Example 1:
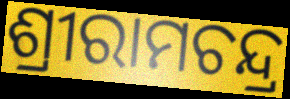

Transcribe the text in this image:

ଶ୍ରୀରାମଚନ୍ଦ୍ର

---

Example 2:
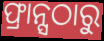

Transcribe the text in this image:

ଫ୍ରାନ୍ସଠାରୁ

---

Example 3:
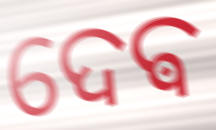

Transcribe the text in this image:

ଦେଵ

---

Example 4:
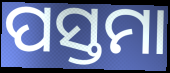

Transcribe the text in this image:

ପସ୍ତମା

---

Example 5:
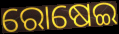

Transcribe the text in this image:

ରୋଷେଇ